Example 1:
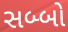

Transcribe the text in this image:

સબ્બો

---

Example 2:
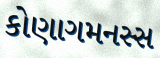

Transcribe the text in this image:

કોણાગમનસ્સ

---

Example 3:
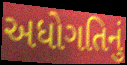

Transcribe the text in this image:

અધોગતિનું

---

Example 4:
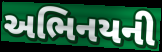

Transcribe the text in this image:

અભિનયની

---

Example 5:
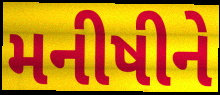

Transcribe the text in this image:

મનીષીને